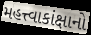
મહત્ત્વાકાંક્ષાનો